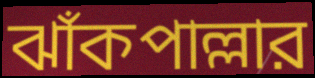
ঝাঁকপাল্লার